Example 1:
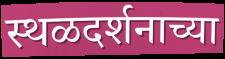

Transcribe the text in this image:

स्थळदर्शनाच्या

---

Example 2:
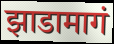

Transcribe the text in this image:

झाडामागं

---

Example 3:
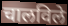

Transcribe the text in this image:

चालविले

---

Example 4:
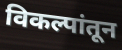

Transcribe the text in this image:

विकल्पांतून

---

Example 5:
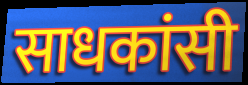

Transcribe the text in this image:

साधकांसी